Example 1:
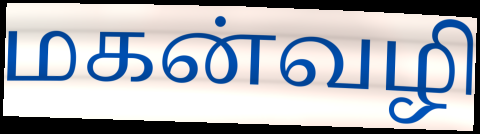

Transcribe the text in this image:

மகன்வழி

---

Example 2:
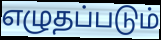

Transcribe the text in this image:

எழுதப்படும்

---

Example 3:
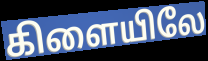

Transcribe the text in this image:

கிளையிலே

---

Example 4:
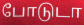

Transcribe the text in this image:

போடுடா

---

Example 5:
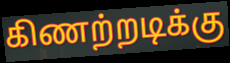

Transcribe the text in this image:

கிணற்றடிக்கு